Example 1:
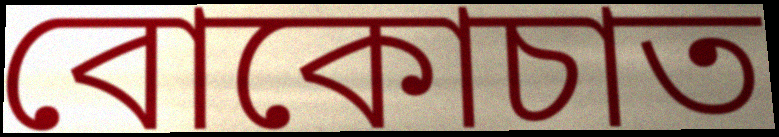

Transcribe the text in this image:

বোকোচাত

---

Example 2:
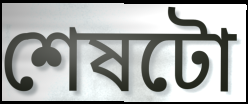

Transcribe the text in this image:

শেষটো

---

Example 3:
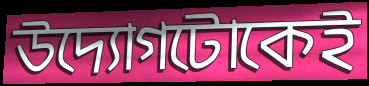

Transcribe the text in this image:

উদ্যোগটোকেই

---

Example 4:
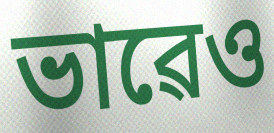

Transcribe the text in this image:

ভাৱেও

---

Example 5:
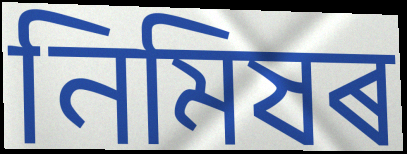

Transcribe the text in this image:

নিমিষৰ